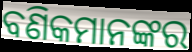
ବଣିକମାନଙ୍କର